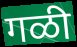
गळी